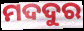
ମଦଦୁର